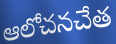
ఆలోచనచేత